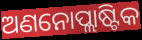
ଅଣନୋପ୍ଲାଷ୍ଟିକ